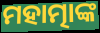
ମହାତ୍ମାଙ୍କ